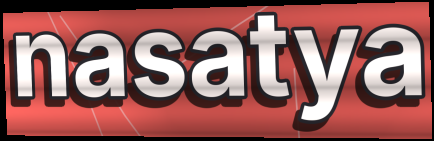
nasatya